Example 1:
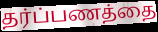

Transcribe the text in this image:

தர்ப்பணத்தை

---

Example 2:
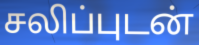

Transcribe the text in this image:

சலிப்புடன்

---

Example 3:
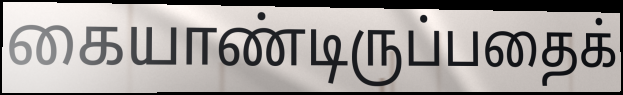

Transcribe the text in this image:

கையாண்டிருப்பதைக்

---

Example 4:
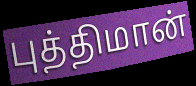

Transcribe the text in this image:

புத்திமான்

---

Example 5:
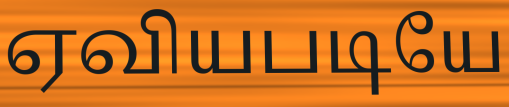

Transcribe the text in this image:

ஏவியபடியே